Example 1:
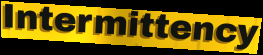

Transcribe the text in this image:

Intermittency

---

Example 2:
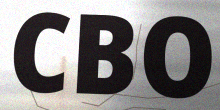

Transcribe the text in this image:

CBO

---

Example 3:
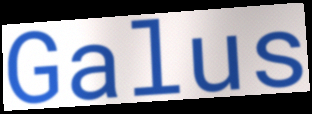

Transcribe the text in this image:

Galus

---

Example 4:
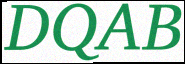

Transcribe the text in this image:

DQAB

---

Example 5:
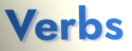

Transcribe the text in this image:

Verbs